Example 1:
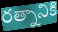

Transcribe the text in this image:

రత్నానికి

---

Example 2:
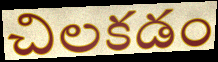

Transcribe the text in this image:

చిలకడం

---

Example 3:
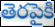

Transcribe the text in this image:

తెరపైకి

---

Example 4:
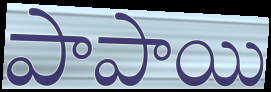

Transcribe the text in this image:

పాపాయి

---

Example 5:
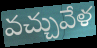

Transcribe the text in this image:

వచ్చువేళ